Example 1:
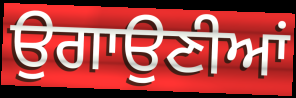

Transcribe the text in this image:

ਉਗਾਉਣੀਆਂ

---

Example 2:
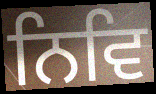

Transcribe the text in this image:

ਨਿਵਿ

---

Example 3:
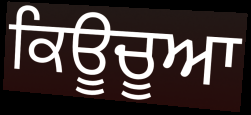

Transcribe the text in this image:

ਕਿਊਚੂਆ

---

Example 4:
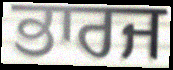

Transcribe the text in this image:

ਭਾਰਜ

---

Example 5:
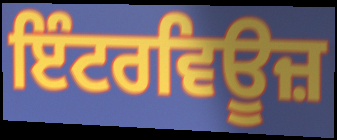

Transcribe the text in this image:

ਇੰਟਰਵਿਊਜ਼